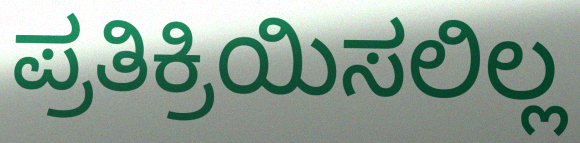
ಪ್ರತಿಕ್ರಿಯಿಸಲಿಲ್ಲ